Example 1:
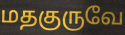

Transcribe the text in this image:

மதகுருவே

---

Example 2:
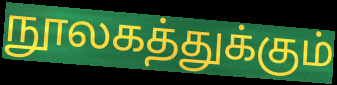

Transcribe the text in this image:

நூலகத்துக்கும்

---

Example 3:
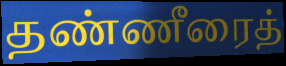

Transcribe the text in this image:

தண்ணீரைத்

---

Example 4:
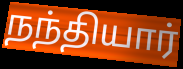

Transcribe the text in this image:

நந்தியார்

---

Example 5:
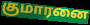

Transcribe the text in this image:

குமாரனை